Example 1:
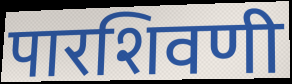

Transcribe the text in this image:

पारशिवणी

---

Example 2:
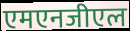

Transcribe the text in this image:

एमएनजीएल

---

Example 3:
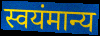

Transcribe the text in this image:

स्वयंमान्य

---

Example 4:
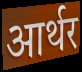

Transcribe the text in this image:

आर्थर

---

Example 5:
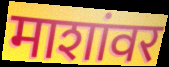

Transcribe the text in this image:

माशांवर